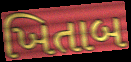
ખિતાબ